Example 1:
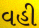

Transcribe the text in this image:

વહી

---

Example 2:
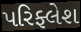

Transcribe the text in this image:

પરિફ્લેશ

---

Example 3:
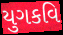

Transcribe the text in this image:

યુગકવિ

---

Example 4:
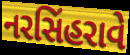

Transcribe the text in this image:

નરસિંહરાવે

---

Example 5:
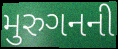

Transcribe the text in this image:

મુરુગનની